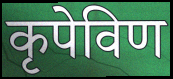
कृपेविण